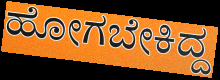
ಹೋಗಬೇಕಿದ್ದ